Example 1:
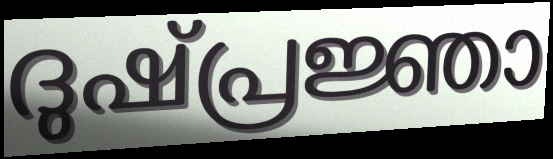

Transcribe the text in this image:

ദുഷ്പ്രജ്ഞാ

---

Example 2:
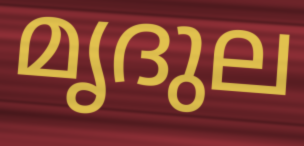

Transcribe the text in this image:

മൃദുല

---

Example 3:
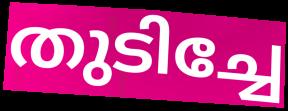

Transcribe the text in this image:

തുടിച്ചേ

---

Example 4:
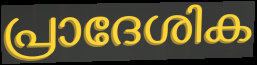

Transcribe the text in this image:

പ്രാദേശിക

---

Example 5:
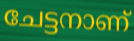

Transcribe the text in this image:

ചേട്ടനാണ്